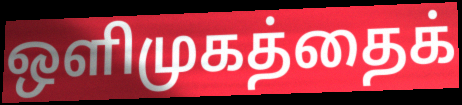
ஒளிமுகத்தைக்